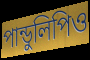
পান্ডুলিপিও